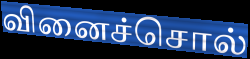
வினைச்சொல்